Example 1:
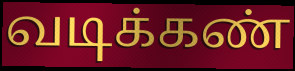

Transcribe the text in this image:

வடிக்கண்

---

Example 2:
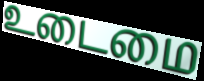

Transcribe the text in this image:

உடைமை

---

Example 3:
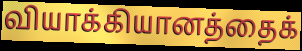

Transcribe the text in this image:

வியாக்கியானத்தைக்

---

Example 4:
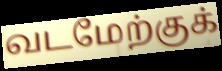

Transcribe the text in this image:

வடமேற்குக்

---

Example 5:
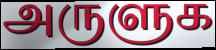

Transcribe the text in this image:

அருளுக